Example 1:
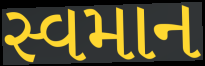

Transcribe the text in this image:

સ્વમાન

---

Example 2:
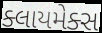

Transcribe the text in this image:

ક્લાયમેક્સ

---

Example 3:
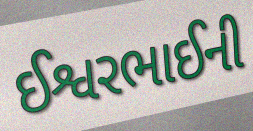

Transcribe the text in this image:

ઈશ્વરભાઈની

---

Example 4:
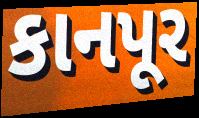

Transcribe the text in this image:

કાનપૂર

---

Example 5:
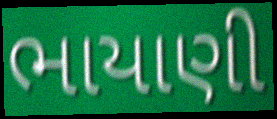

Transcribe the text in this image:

ભાયાણી